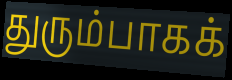
துரும்பாகக்